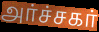
அர்ச்சகர்